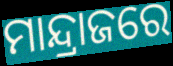
ମାନ୍ଦ୍ରାଜରେ